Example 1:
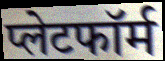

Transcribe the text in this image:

प्‍लेटफॉर्म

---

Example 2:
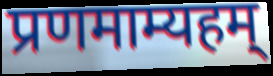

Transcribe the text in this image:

प्रणमाम्यहम्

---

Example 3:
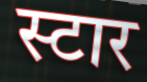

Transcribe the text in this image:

स्‍टार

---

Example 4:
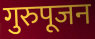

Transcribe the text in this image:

गुरुपूजन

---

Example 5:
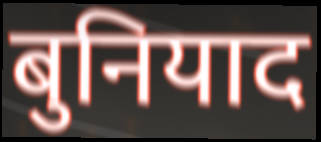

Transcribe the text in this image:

बुनियाद